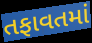
તફાવતમાં